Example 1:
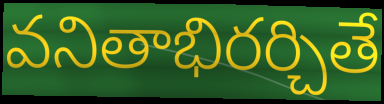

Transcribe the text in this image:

వనితాభిరర్చితే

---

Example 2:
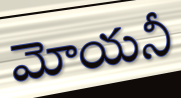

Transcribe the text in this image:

మోయనీ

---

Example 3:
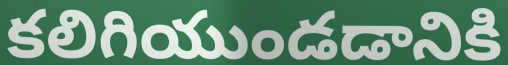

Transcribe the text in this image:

కలిగియుండడానికి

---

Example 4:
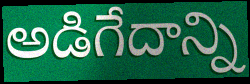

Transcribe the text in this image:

అడిగేదాన్ని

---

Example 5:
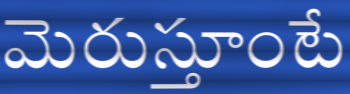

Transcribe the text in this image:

మెరుస్తూంటే